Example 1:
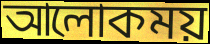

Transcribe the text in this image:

আলোকময়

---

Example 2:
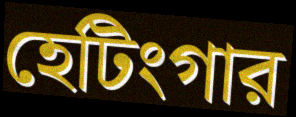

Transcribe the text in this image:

হেটিংগার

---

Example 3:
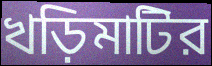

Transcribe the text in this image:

খড়িমাটির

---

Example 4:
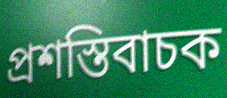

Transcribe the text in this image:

প্রশস্তিবাচক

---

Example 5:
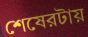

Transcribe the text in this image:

শেষেরটায়